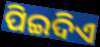
ପିଇଦିଏ